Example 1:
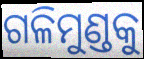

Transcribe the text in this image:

ଗଳିମୁଣ୍ଡକୁ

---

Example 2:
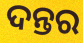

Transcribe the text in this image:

ଦନ୍ତର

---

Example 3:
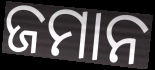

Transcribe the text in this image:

ଜମାନ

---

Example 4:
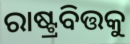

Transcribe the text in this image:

ରାଷ୍ଟ୍ରବିତ୍ତକୁ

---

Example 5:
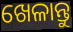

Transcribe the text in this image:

ଖେଳାନ୍ତୁ